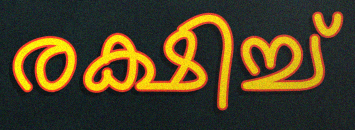
രക്ഷിച്ച്